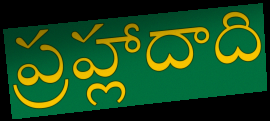
ప్రహ్లాదాది